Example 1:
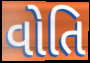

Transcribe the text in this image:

વોતિ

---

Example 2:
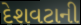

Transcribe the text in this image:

દેશવટાની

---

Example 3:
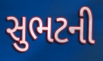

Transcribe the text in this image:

સુભટની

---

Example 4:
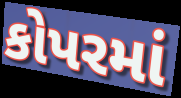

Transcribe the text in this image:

કોપરમાં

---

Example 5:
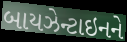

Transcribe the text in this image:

બાયઝેન્ટાઇનને